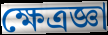
ক্ষেত্রজ্ঞা